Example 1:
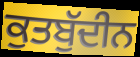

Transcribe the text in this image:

ਕੁਤਬੁੱਦੀਨ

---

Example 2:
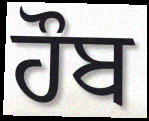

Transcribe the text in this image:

ਹੌਬ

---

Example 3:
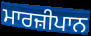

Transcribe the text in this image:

ਮਾਰਜ਼ੀਪਾਨ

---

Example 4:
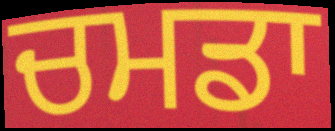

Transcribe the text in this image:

ਚਮਡਾ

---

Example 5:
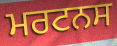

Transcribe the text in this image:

ਮਰਟਨਸ